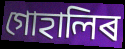
গোহালিৰ